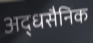
अद्धसैनिक